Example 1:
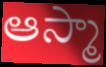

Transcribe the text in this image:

ఆస్మా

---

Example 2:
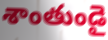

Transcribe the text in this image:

శాంతుండై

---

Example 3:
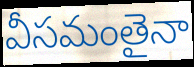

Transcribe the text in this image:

వీసమంతైనా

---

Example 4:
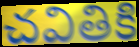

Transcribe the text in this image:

చవితికి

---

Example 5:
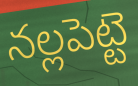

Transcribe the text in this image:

నల్లపెట్టె